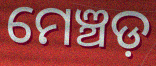
ମେଞ୍ଚଡ଼